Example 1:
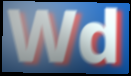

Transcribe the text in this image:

Wd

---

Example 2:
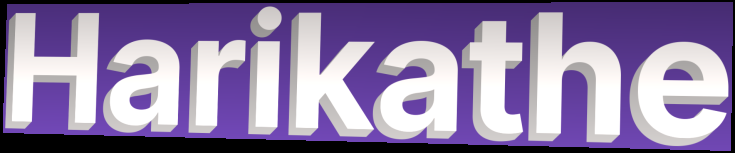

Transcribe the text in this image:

Harikathe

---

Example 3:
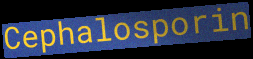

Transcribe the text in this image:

Cephalosporin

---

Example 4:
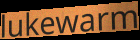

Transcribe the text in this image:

lukewarm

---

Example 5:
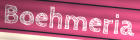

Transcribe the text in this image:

Boehmeria